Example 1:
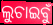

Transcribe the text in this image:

ଲୁଚାଇବୁଁ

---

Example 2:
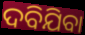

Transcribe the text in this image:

ଦବିଯିବା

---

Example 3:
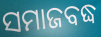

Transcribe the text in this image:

ସମାଜବଦ୍ଧ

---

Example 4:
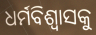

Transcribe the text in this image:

ଧର୍ମବିଶ୍ୱାସକୁ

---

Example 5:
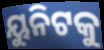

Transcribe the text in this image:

ୟୁନିଟକୁ